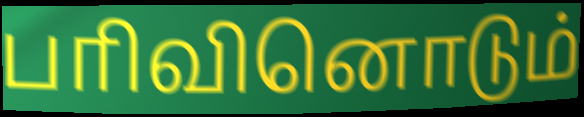
பரிவினொடும்